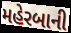
મહેરબાની